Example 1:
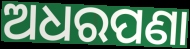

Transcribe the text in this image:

ଅଧରପଣା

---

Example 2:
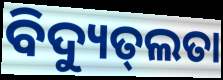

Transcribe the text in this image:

ବିଦ୍ୟୁତ୍‌ଲତା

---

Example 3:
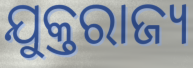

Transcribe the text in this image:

ଯୁକ୍ତରାଜ୍ୟ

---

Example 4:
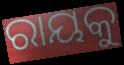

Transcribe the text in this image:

ରାୟକୁ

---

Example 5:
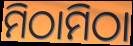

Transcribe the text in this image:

ମିଠାମିଠା